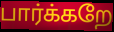
பார்க்கறே